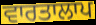
ਵਾਰਤਾਲਾਪ